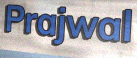
Prajwal